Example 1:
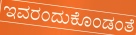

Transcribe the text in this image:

ಇವರಂದುಕೊಂಡಂತೆ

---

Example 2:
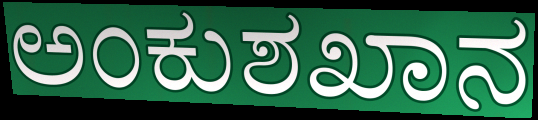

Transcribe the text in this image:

ಅಂಕುಶಖಾನ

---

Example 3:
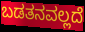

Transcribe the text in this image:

ಬಡತನವಲ್ಲದೆ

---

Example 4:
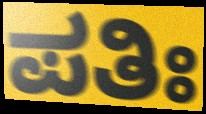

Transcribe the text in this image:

ಪತಿಃ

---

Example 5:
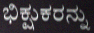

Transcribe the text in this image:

ಭಿಕ್ಷುಕರನ್ನು